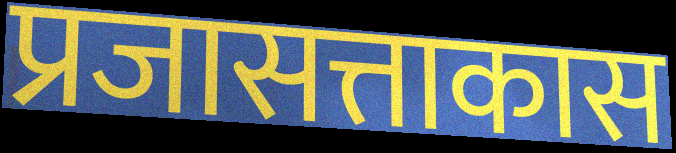
प्रजासत्ताकास